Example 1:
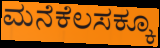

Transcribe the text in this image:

ಮನೆಕೆಲಸಕ್ಕೂ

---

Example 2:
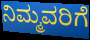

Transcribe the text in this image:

ನಿಮ್ಮವರಿಗೆ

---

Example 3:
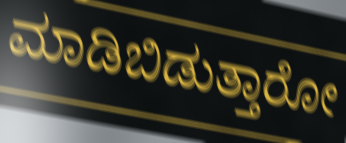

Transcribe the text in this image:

ಮಾಡಿಬಿಡುತ್ತಾರೋ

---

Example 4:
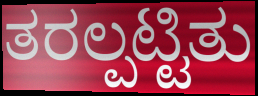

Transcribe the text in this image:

ತರಲ್ಪಟ್ಟಿತು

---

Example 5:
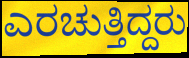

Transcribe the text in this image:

ಎರಚುತ್ತಿದ್ದರು